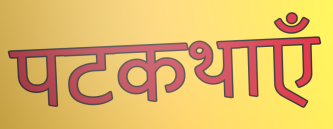
पटकथाएँ